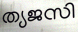
ത്യജസി